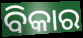
ବିକାର